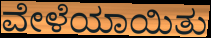
ವೇಳೆಯಾಯಿತು